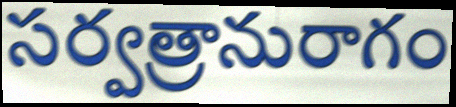
సర్వత్రానురాగం